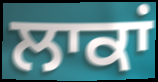
ਲਾਕਾਂ